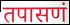
तपासणं